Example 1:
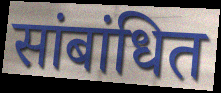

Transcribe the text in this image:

सांबांधित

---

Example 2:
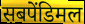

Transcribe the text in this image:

सबपेंडिमल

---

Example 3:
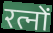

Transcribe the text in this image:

रत्‍नों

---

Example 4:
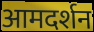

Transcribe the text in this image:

आमदर्शन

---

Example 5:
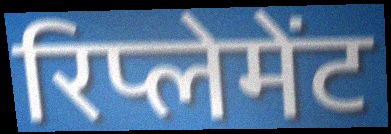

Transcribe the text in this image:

रिप्लेमेंट